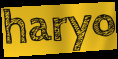
haryo